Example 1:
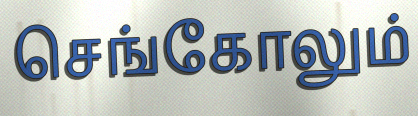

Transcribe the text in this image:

செங்கோலும்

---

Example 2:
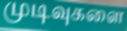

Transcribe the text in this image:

முடிவுகளை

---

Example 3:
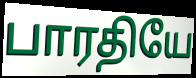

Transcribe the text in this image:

பாரதியே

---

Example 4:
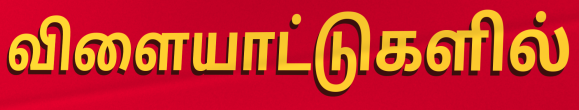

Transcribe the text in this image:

விளையாட்டுகளில்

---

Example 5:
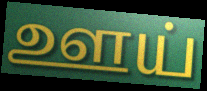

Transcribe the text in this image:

ஊய்